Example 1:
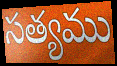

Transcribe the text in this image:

సత్యము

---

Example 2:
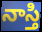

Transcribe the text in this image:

నాస్తి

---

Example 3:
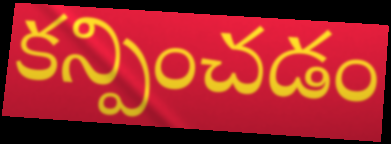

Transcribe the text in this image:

కన్పించడం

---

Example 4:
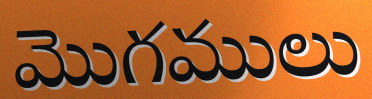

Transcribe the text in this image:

మొగములు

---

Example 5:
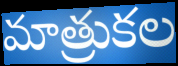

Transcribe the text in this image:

మాత్రుకల